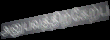
அனுபவத்திற்கேற்ப